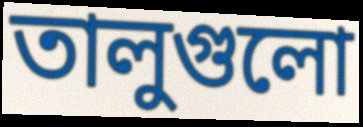
তালুগুলো